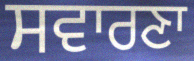
ਸਵਾਰਣਾ